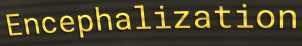
Encephalization